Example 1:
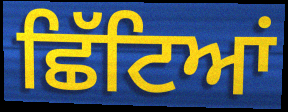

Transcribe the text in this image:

ਛਿੱਟਿਆਂ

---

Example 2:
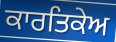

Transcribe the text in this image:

ਕਾਰਤਿਕੇਅ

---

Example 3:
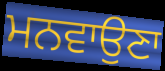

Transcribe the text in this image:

ਮਨਵਾਉਣਾ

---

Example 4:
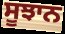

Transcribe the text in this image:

ਸੂਝਾਨ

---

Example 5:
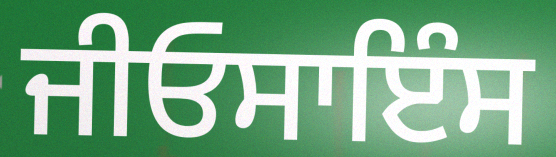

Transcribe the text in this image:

ਜੀਓਸਾਇੰਸ